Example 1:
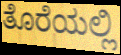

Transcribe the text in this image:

ತೊರೆಯಲ್ಲಿ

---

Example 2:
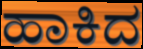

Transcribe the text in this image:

ಹಾಕಿದ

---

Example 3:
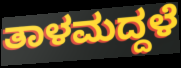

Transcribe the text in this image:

ತಾಳಮದ್ದಳೆ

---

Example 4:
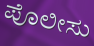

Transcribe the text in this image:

ಪೊಲೀಸು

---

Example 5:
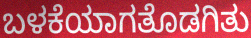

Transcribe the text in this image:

ಬಳಕೆಯಾಗತೊಡಗಿತು